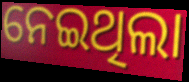
ନେଇଥିଲା